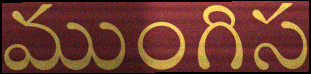
ముంగిస